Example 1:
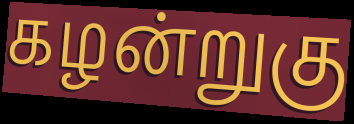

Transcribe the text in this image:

கழன்றுகு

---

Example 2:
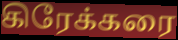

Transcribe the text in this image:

கிரேக்கரை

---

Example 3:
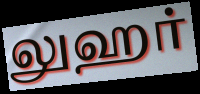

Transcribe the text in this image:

லுஹர்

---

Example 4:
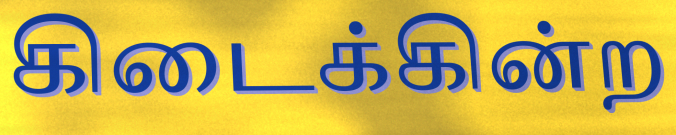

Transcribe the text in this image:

கிடைக்கின்ற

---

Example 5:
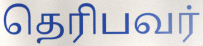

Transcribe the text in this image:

தெரிபவர்